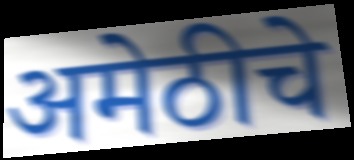
अमेठीचे